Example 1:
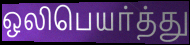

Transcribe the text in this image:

ஒலிபெயர்த்து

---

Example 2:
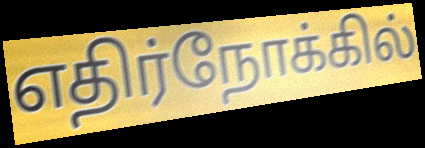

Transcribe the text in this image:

எதிர்நோக்கில்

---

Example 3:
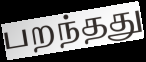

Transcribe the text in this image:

பறந்தது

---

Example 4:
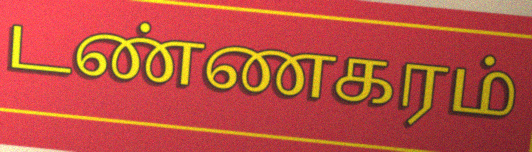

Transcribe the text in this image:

டண்ணகரம்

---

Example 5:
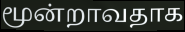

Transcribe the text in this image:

மூன்றாவதாக